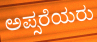
ಅಪ್ಸರೆಯರು